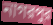
নাগরপুর